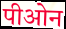
पीओन